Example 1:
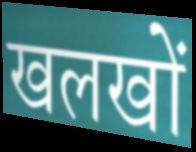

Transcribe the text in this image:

खलखों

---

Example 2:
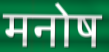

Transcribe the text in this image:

मनोष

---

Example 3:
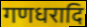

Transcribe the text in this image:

गणधरादि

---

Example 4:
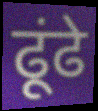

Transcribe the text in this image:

ढूंढे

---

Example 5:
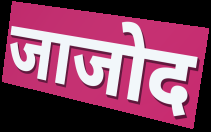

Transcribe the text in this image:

जाजोद